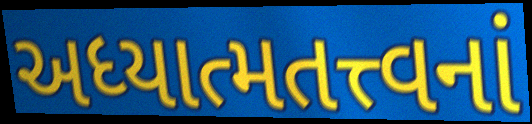
અધ્યાત્મતત્ત્વનાં